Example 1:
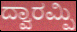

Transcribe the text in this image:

ದ್ವಾರಮ್ಪಿ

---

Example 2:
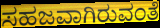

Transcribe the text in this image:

ಸಹಜವಾಗಿರುವಂತೆ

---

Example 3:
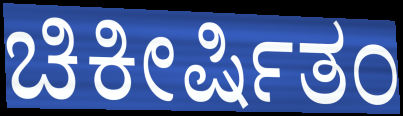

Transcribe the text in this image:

ಚಿಕೀರ್ಷಿತಂ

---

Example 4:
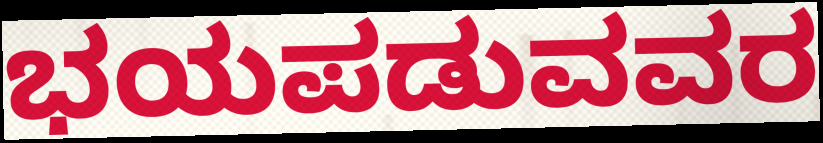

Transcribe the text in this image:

ಭಯಪಡುವವರ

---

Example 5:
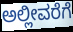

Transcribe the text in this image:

ಅಲ್ಲೀವರೆಗೆ